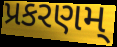
પ્રકરણમ્